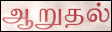
ஆறுதல்